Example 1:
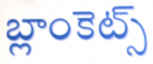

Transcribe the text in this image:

బ్లాంకెట్స్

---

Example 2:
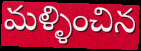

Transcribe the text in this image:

మళ్ళించిన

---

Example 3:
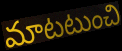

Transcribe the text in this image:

మాటటుంచి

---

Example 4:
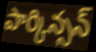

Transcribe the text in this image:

పార్కిన్సన్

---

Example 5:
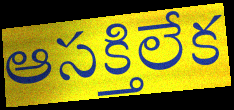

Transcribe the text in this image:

ఆసక్తిలేక